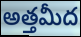
అత్తమీద